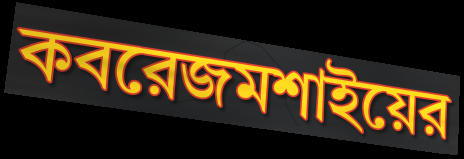
কবরেজমশাইয়ের